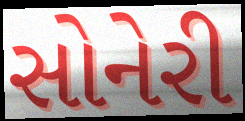
સોનેરી